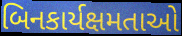
બિનકાર્યક્ષમતાઓ